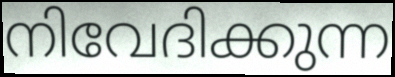
നിവേദിക്കുന്ന